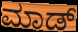
ಮಾಡ್